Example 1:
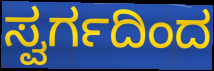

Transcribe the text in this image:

ಸ್ವರ್ಗದಿಂದ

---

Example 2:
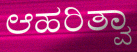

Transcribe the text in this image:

ಆಹರಿತ್ವಾ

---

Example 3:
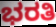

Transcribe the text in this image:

ಭರತಿ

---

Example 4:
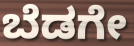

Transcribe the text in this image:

ಬೆಡಗೇ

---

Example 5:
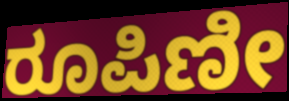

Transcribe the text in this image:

ರೂಪಿಣೀ